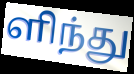
ளிந்து